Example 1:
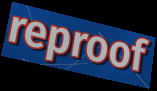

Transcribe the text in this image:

reproof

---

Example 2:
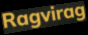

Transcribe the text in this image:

Ragvirag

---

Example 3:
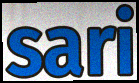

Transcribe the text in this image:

sari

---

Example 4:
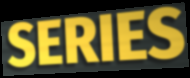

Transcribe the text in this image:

SERIES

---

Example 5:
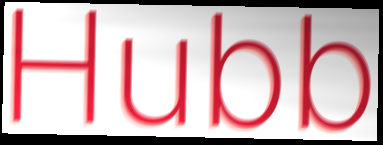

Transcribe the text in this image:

Hubb